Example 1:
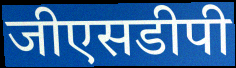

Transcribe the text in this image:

जीएसडीपी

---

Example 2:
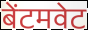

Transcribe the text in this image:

बेंटमवेट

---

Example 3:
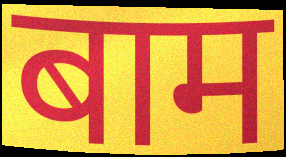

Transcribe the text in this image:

बाम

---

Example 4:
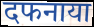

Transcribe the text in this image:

दफनाया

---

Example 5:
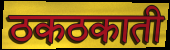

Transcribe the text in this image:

ठकठकाती